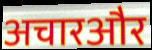
अचारऔर